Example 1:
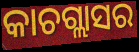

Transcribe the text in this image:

କାଚଗ୍ଲାସର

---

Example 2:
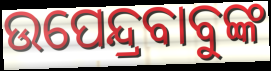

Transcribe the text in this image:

ଉପେନ୍ଦ୍ରବାବୁଙ୍କ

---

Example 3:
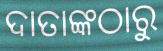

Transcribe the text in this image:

ଦାତାଙ୍କଠାରୁ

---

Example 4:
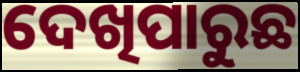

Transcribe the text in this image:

ଦେଖିପାରୁଛ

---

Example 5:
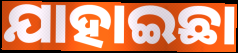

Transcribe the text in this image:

ଯାହାଇଛା